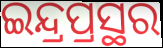
ଇନ୍ଦ୍ରପ୍ରସ୍ଥର